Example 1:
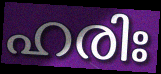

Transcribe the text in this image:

ഹരിഃ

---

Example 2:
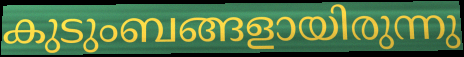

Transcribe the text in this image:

കുടുംബങ്ങളായിരുന്നു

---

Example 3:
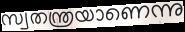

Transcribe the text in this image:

സ്വതന്ത്രയാണെന്നു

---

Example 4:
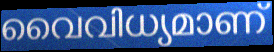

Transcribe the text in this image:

വൈവിധ്യമാണ്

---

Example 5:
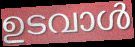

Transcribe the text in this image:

ഉടവാൾ